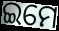
ଇମେ